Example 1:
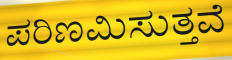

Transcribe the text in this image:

ಪರಿಣಮಿಸುತ್ತವೆ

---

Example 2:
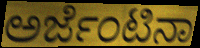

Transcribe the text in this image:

ಅರ್ಜೆಂಟಿನಾ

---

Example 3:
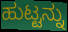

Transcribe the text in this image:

ಹುಟ್ಟನ್ನು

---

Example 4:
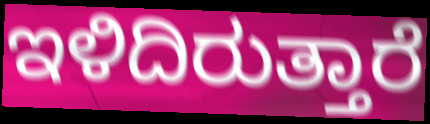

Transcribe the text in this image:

ಇಳಿದಿರುತ್ತಾರೆ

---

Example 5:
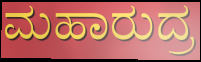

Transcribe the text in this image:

ಮಹಾರುದ್ರ